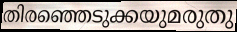
തിരഞ്ഞെടുക്കയുമരുതു